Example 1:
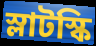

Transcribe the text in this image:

স্লাটস্কি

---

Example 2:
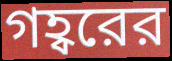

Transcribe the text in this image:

গহ্বরের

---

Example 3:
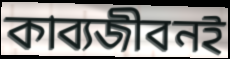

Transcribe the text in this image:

কাব্যজীবনই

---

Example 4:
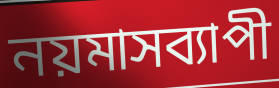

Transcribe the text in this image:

নয়মাসব্যাপী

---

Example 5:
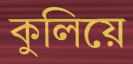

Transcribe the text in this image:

কুলিয়ে